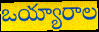
ఒయ్యారాల